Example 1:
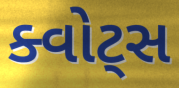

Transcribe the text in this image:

ક્વોટ્સ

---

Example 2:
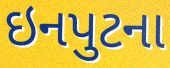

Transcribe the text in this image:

ઇનપુટના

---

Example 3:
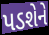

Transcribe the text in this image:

પડશેને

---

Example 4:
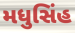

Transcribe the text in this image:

મધુસિંહ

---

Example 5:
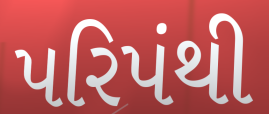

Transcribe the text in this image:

પરિપંથી